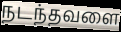
நடந்தவளை